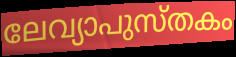
ലേവ്യാപുസ്തകം